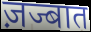
ज़ज्बात